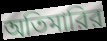
অতিমারির